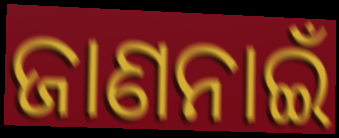
ଜାଣନାଇଁ